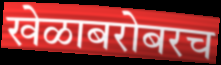
खेळाबरोबरच